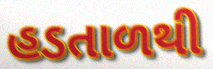
હડતાળથી